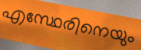
എസ്ഥേരിനെയും